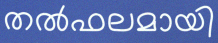
തൽഫലമായി